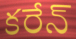
కరేన్